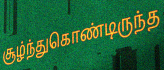
சூழ்ந்துகொண்டிருந்த